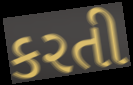
કરતી